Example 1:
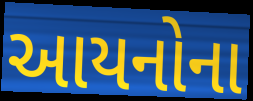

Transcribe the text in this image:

આયનોના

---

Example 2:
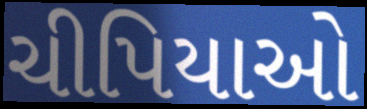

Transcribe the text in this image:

ચીપિયાઓ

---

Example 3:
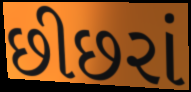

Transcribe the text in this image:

છીછરાં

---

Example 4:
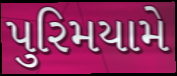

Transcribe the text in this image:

પુરિમયામે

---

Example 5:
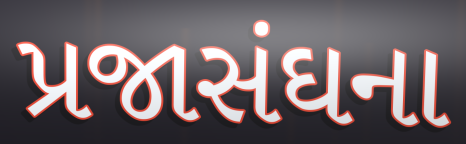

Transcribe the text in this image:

પ્રજાસંઘના